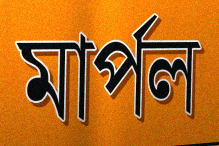
মার্পল